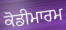
ਕੋਡੀਮਾਰਮ